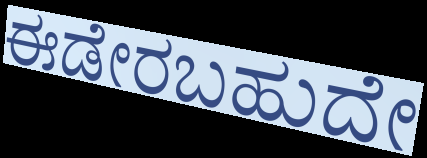
ಈಡೇರಬಹುದೇ